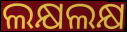
ଲକ୍ଷଲକ୍ଷ